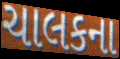
ચાલકના